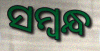
ସମ୍ୱନ୍ଧ